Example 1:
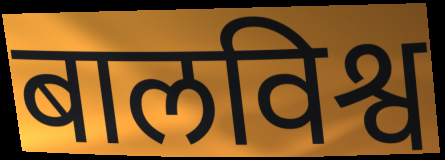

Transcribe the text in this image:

बालविश्व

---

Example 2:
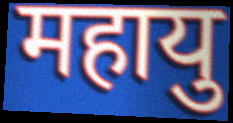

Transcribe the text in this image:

महायु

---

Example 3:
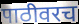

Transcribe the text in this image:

पाठीवरच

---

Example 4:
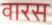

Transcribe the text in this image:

वारस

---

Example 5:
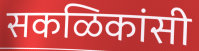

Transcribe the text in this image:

सकळिकांसी